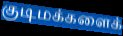
குடிமக்களைக்